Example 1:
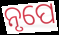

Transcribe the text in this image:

ନୃପେ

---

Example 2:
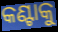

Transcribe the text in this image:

କଣ୍ଟାକୁ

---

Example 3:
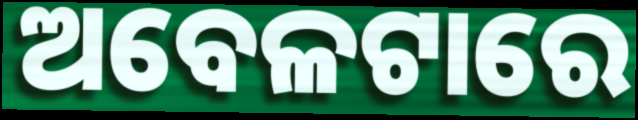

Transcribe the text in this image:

ଅବେଳଟାରେ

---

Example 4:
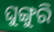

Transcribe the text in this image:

ଘୁଙ୍ଗୁରି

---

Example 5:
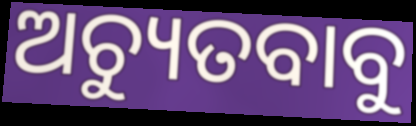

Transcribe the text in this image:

ଅଚ୍ୟୁତବାବୁ